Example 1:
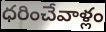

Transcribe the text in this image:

ధరించేవాళ్లం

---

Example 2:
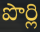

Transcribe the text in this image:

పొర్లి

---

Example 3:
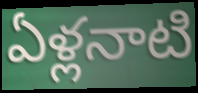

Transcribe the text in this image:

ఏళ్లనాటి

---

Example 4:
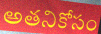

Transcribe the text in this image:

అతనికోసం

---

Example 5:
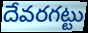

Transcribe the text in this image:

దేవరగట్టు